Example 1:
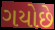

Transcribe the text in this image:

ગયોછે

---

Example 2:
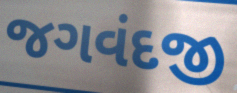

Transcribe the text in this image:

જગવંદજી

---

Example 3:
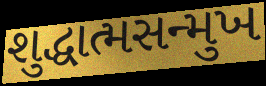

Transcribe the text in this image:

શુદ્ધાત્મસન્મુખ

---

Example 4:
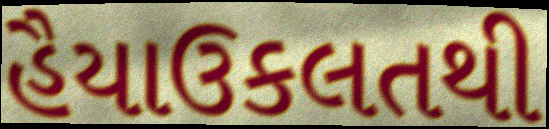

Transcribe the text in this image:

હૈયાઉકલતથી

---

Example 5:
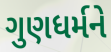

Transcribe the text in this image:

ગુણધર્મને